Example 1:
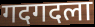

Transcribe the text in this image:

गदगदला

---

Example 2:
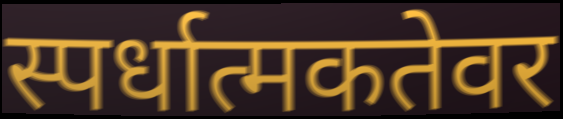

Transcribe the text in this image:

स्पर्धात्मकतेवर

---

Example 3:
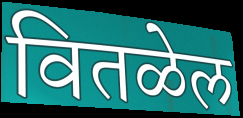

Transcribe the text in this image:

वितळेल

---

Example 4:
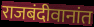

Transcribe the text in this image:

राजबंदीवानांत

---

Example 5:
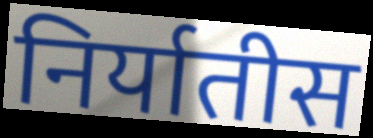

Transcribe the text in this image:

निर्यातीस